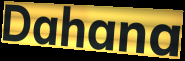
Dahana